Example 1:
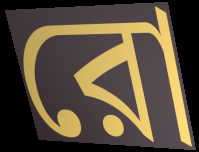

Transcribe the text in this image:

রো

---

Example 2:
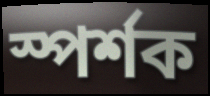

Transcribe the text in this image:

স্পর্শক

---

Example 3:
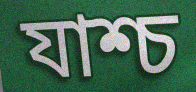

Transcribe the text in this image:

যাশ্চ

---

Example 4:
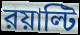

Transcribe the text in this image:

রয়াল্টি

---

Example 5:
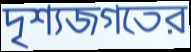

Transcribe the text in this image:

দৃশ্যজগতের